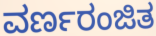
ವರ್ಣರಂಜಿತ